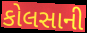
કોલસાની